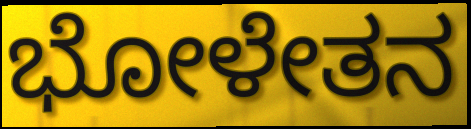
ಭೋಳೇತನ